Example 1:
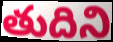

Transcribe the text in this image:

తుదిని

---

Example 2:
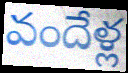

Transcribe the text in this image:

వందేళ్ల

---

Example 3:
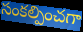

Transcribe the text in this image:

సంకల్పించగా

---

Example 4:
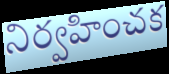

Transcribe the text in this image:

నిర్వహించక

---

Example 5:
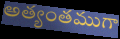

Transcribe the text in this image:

అత్యంతముగా